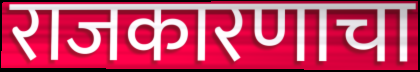
राजकारणाचा